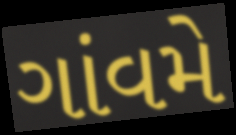
ગાંવમે